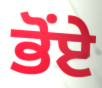
ਭੋਂਏ